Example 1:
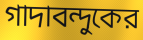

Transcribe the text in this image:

গাদাবন্দুকের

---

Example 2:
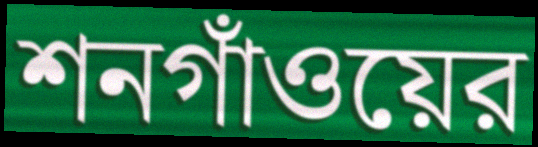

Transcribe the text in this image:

শনগাঁওয়ের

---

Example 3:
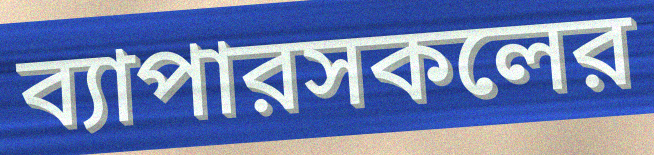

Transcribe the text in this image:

ব্যাপারসকলের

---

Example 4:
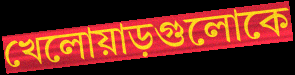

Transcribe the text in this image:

খেলোয়াড়গুলোকে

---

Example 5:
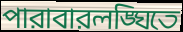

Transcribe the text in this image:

পারাবারলঙ্ঘিতে